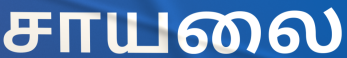
சாயலை